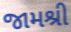
જામશ્રી